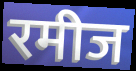
रमीज